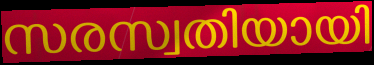
സരസ്വതിയായി